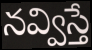
నవ్విస్తే